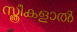
സ്ത്രീകളാൽ